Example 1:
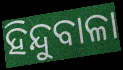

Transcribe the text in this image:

ହିନ୍ଦୁବାଳା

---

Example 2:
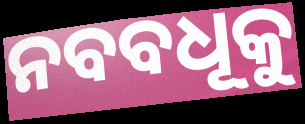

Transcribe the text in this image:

ନବବଧୂକୁ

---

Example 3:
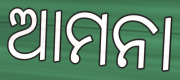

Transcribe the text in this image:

ଆମନା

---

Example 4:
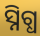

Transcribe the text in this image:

ସ୍ନିଗ୍ଧ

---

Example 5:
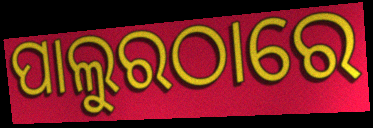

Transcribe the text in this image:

ପାଲୁରଠାରେ